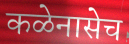
कळेनासेच